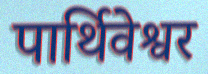
पार्थिवेश्वर